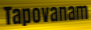
Tapovanam